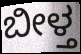
ಬೀಳ್ತ